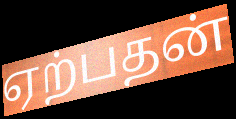
ஏற்பதன்